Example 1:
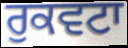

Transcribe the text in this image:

ਰੁਕਵਟਾ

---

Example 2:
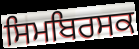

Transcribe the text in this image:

ਸਿਮਬਿਰਸਕ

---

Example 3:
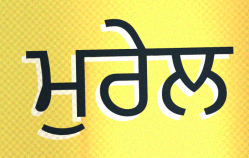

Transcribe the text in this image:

ਮੁਰੇਲ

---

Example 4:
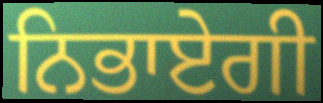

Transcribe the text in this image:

ਨਿਭਾਏਗੀ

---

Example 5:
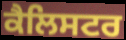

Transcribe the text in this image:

ਕੈਲਿਸਟਰ